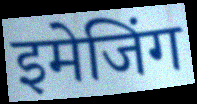
इमेजिंग